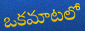
ఒకమాటలో